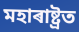
মহাৰাষ্ট্ৰত